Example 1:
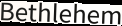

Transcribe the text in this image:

Bethlehem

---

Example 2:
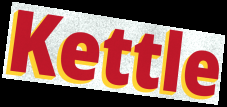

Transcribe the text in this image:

Kettle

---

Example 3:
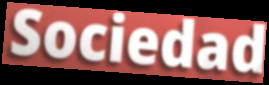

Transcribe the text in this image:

Sociedad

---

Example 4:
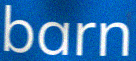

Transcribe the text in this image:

barn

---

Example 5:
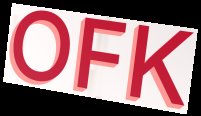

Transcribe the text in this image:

OFK